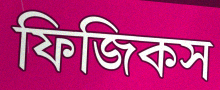
ফিজিকস